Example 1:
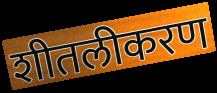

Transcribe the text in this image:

शीतलीकरण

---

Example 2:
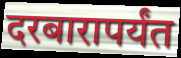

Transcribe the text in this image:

दरबारापर्यंत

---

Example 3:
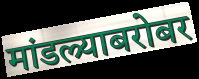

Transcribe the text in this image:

मांडल्याबरोबर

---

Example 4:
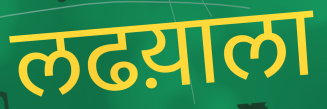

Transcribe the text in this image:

लढय़ाला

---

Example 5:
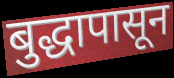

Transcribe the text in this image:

बुद्धापासून